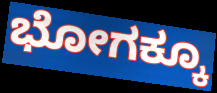
ಭೋಗಕ್ಕೂ